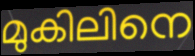
മുകിലിനെ